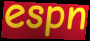
espn